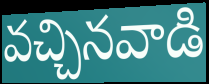
వచ్చినవాడి